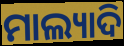
ମାଲ୍ୟାଦି